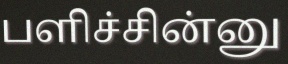
பளிச்சின்னு